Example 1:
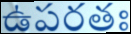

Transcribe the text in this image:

ఉపరతః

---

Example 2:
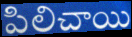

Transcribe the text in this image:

పిలిచాయి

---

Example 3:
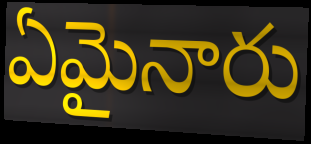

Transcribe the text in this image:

ఏమైనారు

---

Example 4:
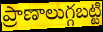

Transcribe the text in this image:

ప్రాణాలుగ్గబట్టి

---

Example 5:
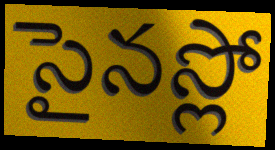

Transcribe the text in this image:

సైనస్లో